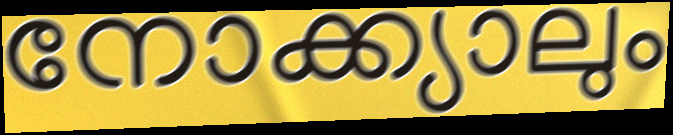
നോക്ക്യാലും